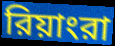
রিয়াংরা